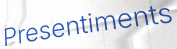
Presentiments